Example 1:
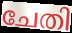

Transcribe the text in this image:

ചേതി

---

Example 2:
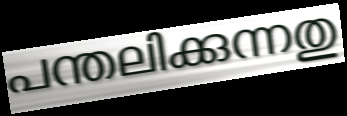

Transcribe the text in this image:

പന്തലിക്കുന്നതു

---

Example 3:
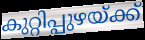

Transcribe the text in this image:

കുറ്റിപ്പുഴയ്ക്ക്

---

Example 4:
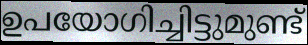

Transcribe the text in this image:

ഉപയോഗിച്ചിട്ടുമുണ്ട്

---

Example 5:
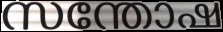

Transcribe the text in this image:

സന്തോഷ